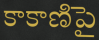
కాకాణిపై